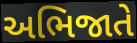
અભિજાતે